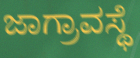
ಜಾಗ್ರಾವಸ್ಥೆ